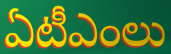
ఏటీఎంలు